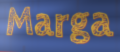
Marga